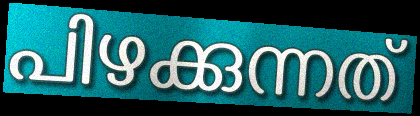
പിഴക്കുന്നത്